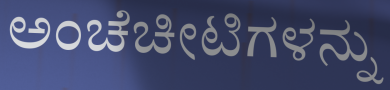
ಅಂಚೆಚೀಟಿಗಳನ್ನು